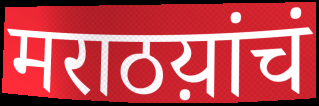
मराठय़ांचं